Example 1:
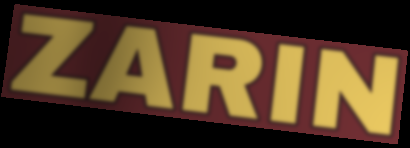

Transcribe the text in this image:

ZARIN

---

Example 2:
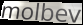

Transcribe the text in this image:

molbev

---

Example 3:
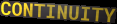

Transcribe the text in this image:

CONTINUITY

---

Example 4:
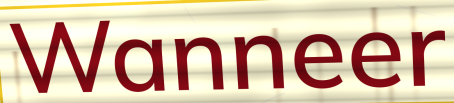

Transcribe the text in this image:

Wanneer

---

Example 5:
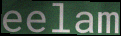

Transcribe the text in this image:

eelam